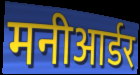
मनीआर्डर